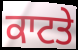
ਕਾਟਤੇ